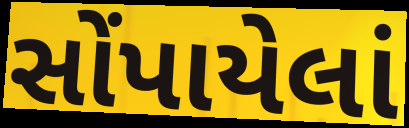
સોંપાયેલાં